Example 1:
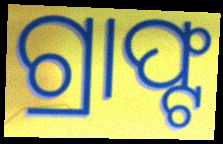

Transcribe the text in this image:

ଗ୍ରାଫ୍ଟ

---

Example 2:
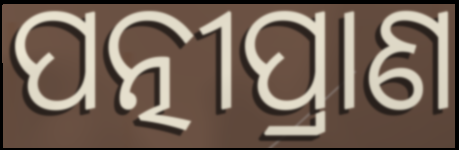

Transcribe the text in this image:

ପତ୍ନୀପ୍ରାଣ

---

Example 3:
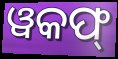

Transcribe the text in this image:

ୱକଫ୍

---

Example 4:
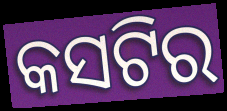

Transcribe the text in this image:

କସଟିର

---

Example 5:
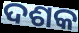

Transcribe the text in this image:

ଦଶକ